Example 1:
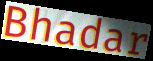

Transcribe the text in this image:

Bhadar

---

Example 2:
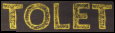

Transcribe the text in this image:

TOLET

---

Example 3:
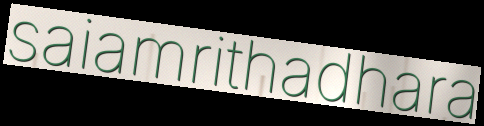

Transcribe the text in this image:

saiamrithadhara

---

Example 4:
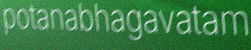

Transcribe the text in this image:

potanabhagavatam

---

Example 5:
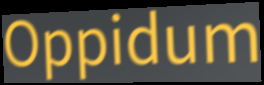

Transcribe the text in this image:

Oppidum